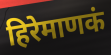
हिरेमाणकं